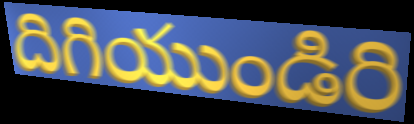
దిగియుండిరి